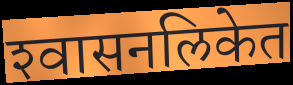
श्वासनलिकेत